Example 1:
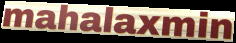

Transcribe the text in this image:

mahalaxmin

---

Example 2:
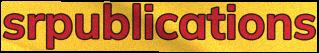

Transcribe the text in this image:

srpublications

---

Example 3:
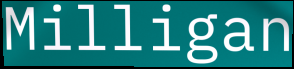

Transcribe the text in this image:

Milligan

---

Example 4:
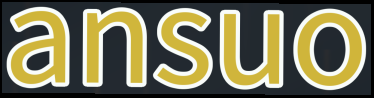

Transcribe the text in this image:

ansuo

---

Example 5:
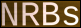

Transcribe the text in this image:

NRBs